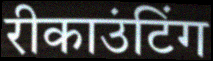
रीकाउंटिंग